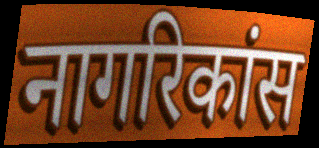
नागरिकांस